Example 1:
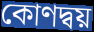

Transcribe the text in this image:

কোণদ্বয়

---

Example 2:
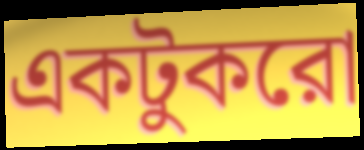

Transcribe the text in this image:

একটুকরো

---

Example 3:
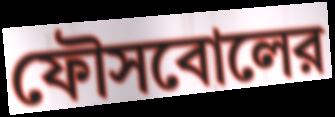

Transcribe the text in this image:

ফৌসবোলের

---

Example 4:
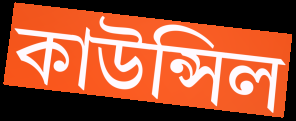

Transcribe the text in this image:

কাউন্সিল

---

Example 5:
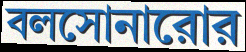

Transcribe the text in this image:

বলসোনারোর